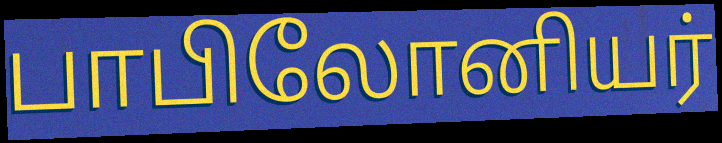
பாபிலோனியர்